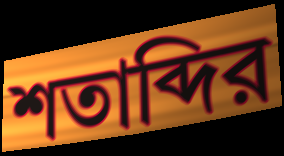
শতাব্দির